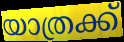
യാത്രക്ക്